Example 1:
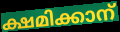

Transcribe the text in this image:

ക്ഷമിക്കാന്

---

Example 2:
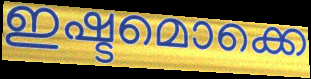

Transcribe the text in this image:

ഇഷ്ടമൊക്കെ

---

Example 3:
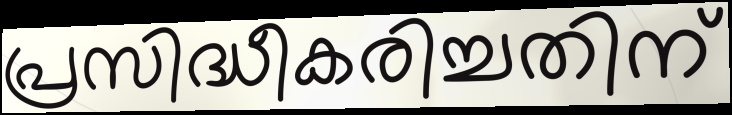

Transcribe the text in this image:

പ്രസിദ്ധീകരിച്ചതിന്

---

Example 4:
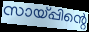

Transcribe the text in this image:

സായ്പ്പിന്റെ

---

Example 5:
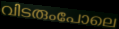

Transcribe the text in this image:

വിടരുംപോലെ